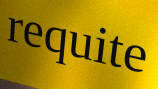
requite